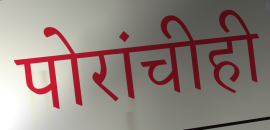
पोरांचीही